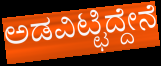
ಅಡವಿಟ್ಟಿದ್ದೇನೆ